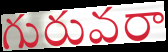
గురువరా